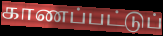
காணப்பட்டுப்